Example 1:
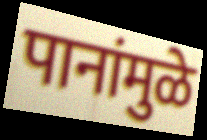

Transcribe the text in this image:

पानांमुळे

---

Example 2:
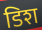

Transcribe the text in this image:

डिश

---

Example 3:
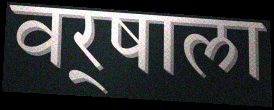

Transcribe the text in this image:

वर्षाला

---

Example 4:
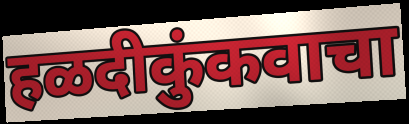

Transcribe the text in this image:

हळदीकुंकवाचा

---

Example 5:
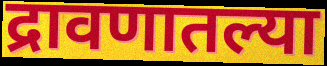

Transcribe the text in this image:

द्रावणातल्या